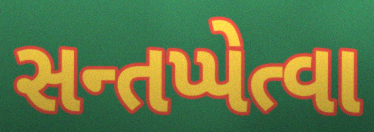
સન્તપ્પેત્વા